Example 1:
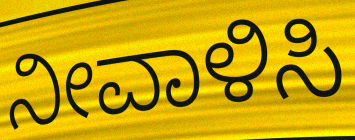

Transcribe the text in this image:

ನೀವಾಳಿಸಿ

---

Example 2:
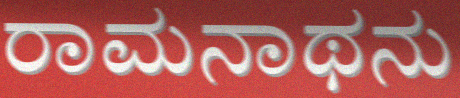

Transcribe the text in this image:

ರಾಮನಾಥನು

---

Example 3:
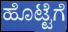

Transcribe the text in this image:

ಹೊಟ್ಟೆಗೆ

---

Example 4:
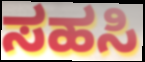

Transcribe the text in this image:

ಸಹಸಿ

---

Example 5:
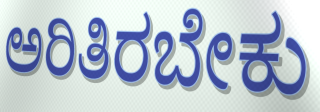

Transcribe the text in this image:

ಅರಿತಿರಬೇಕು